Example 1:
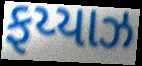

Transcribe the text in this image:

ફય્યાઝ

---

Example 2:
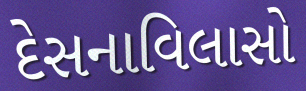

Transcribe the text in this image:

દેસનાવિલાસો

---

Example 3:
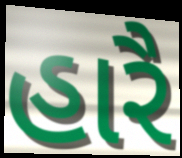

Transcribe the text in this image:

હારૈ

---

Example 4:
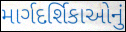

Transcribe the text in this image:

માર્ગદર્શિકાઓનું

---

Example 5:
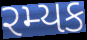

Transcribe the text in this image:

રમ્યક